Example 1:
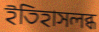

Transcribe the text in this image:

ইতিহাসলব্ধ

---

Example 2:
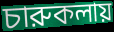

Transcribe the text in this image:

চারুকলায়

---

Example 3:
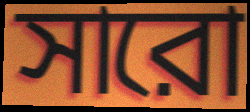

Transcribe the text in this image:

সারো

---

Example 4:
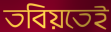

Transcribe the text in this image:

তবিয়তেই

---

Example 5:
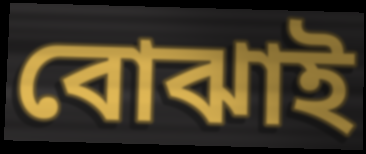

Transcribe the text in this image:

বোঝাই